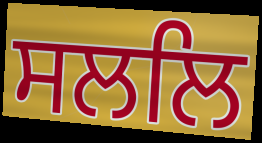
ਸਲਲਿ